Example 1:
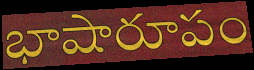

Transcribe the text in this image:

భాషారూపం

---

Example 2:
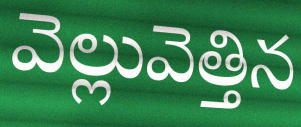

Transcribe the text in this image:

వెల్లువెత్తిన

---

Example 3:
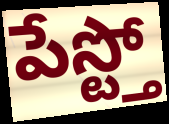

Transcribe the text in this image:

పేస్ట్తో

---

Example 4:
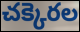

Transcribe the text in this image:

చక్కెరల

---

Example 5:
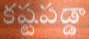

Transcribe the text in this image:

కష్టపడ్డా